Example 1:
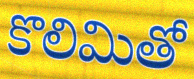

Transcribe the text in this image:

కొలిమితో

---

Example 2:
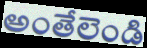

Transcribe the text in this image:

అంతేలెండి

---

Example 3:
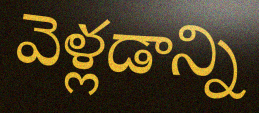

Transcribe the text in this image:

వెళ్లడాన్ని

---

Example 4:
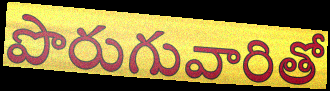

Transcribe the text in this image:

పొరుగువారితో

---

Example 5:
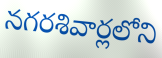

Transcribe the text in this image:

నగరశివార్లలోని